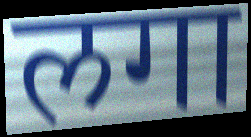
लगा